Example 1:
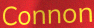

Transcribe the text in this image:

Connon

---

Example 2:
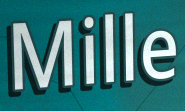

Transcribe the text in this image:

Mille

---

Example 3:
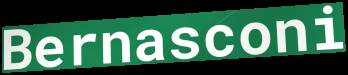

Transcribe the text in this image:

Bernasconi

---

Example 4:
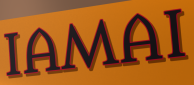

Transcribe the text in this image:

IAMAI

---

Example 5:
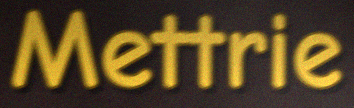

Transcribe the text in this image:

Mettrie